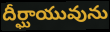
దీర్ఘాయువును